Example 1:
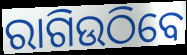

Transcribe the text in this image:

ରାଗିଉଠିବେ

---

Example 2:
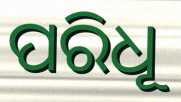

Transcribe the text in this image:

ପରିଧୂ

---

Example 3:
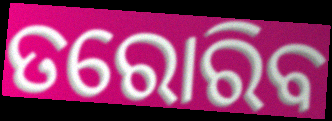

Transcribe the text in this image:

ତରୋରିବ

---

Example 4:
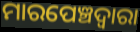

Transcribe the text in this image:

ମାରପେଞ୍ଚଦ୍ବାରା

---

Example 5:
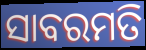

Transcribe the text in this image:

ସାବରମତି